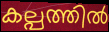
കല്പത്തിൽ